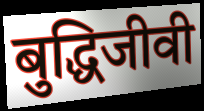
बुद्धिजीवी